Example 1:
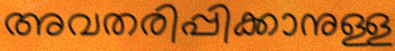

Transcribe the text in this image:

അവതരിപ്പിക്കാനുള്ള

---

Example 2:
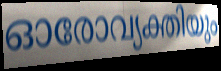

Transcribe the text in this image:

ഓരോവ്യക്തിയും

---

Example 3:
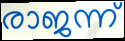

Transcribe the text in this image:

രാജന്ന്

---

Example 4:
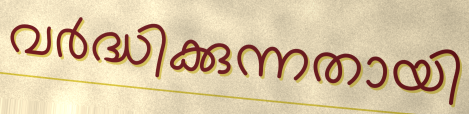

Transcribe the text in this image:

വർദ്ധിക്കുന്നതായി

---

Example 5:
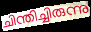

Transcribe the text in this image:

ചിന്തിച്ചിരുന്നു